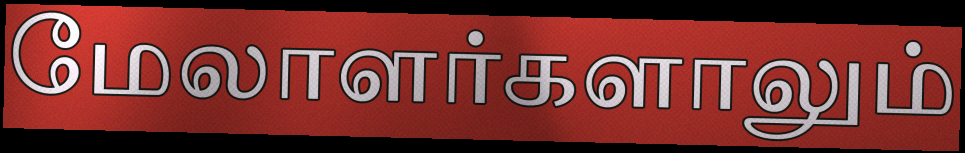
மேலாளர்களாலும்